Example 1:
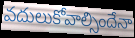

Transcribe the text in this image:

వదులుకోవాల్సిందేనా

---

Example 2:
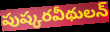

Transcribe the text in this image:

పుష్కరవీథులన్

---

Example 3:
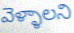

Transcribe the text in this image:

వెళ్ళాలని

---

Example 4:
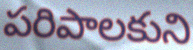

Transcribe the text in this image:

పరిపాలకుని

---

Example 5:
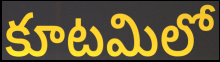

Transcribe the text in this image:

కూటమిలో